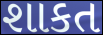
શાકત